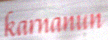
karnanun